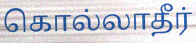
கொல்லாதீர்